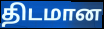
திடமான